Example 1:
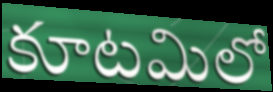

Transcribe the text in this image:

కూటమిలో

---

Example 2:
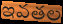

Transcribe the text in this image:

ఇవతల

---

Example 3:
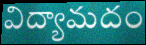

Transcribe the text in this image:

విద్యామదం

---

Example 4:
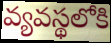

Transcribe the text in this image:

వ్యవస్థలోకి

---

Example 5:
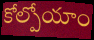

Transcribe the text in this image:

కోల్పోయాం